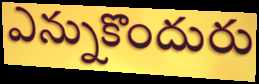
ఎన్నుకొందురు